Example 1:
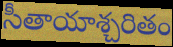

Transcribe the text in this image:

సీతాయాశ్చరితం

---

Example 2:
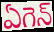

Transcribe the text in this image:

ఏగెన్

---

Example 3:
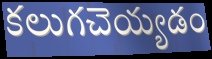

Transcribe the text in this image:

కలుగచెయ్యడం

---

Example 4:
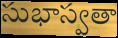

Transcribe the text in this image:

సుభాస్వతా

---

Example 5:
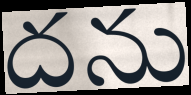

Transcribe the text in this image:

దను